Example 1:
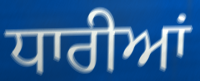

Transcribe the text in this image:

ਧਾਰੀਆਂ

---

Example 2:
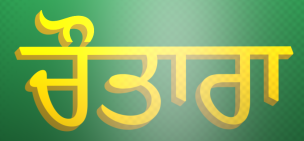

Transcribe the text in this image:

ਚੌਤਾਰਾ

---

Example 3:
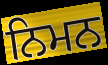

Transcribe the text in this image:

ਨਿਮਨ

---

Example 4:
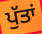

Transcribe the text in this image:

ਪੁੱਤਾਂ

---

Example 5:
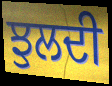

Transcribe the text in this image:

ਝੁਲਦੀ